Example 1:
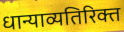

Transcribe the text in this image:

धान्याव्यतिरिक्त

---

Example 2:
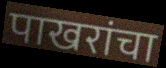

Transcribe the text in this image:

पाखरांचा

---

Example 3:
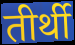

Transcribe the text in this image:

तीर्थी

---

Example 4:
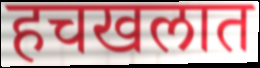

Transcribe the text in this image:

हचखलात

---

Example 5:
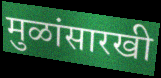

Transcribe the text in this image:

मुळांसारखी